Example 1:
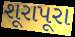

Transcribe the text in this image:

શૂરાપૂરા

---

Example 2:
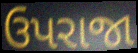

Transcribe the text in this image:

ઉપરાજા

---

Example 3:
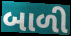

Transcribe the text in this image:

બાળી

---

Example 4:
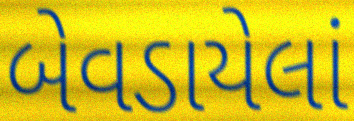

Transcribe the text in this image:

બેવડાયેલાં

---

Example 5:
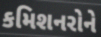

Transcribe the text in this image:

કમિશનરોને